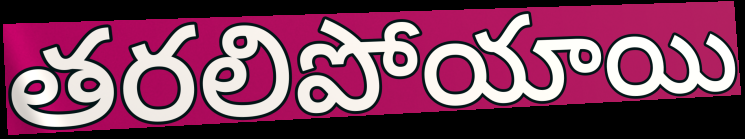
తరలిపోయాయి